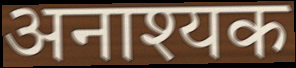
अनाश्यक